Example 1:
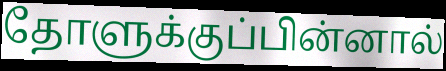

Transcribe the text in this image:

தோளுக்குப்பின்னால்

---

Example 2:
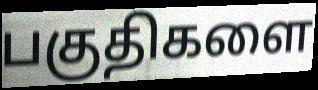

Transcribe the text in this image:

பகுதிகளை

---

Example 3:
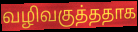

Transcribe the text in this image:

வழிவகுத்ததாக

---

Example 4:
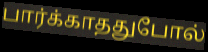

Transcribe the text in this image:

பார்க்காததுபோல்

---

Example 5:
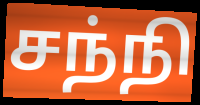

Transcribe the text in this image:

சந்நி